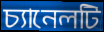
চ্যানেলটি